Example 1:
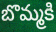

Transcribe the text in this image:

బొమ్మకి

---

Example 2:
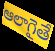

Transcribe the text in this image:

ఆలాగైతే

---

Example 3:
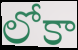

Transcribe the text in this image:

లోకా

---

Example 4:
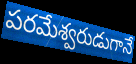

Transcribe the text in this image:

పరమేశ్వరుడుగానే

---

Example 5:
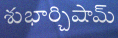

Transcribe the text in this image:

శుభార్చిషామ్